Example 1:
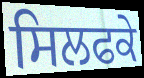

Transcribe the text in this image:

ਸਿਲਫਕੇ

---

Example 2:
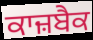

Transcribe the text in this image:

ਕਾਜ਼ਬੈਕ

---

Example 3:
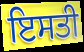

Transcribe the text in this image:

ਇਸਤੀ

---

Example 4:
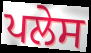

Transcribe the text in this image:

ਪਲੇਸ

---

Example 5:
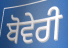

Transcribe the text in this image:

ਬੋਵੇਰੀ